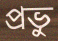
প্ৰভু